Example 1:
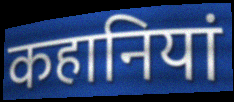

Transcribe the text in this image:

कहानियां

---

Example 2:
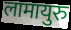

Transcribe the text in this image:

लामायुरु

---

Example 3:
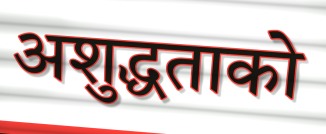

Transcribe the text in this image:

अशुद्धताको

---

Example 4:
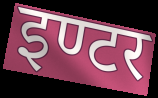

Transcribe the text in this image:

इण्टर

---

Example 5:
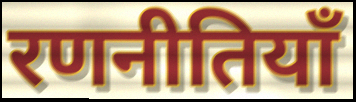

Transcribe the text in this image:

रणनीतियाँ